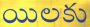
యిలకు